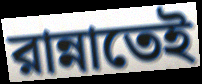
রান্নাতেই